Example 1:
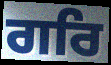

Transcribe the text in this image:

ਗਰਿ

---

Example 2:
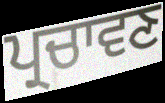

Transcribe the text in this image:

ਪ੍ਰਚਾਵਣ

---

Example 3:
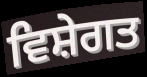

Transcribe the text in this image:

ਵਿਸ਼ੇਗਤ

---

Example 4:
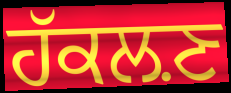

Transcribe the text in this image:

ਹੱਕਲ਼ਣ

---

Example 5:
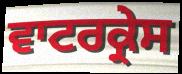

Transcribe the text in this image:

ਵਾਟਰਕ੍ਰੇਸ